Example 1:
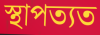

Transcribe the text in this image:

স্থাপত্যত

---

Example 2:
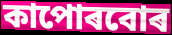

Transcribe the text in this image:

কাপোৰবোৰ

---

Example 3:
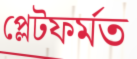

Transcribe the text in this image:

প্লেটফৰ্মত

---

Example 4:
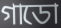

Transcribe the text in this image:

গাডো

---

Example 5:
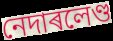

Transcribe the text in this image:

নেদাৰলেণ্ড